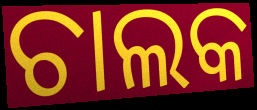
ଚାଲକ